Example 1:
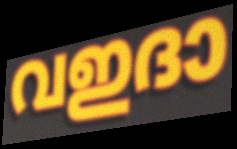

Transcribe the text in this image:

വഇദാ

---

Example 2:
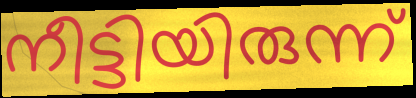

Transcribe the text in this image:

നീട്ടിയിരുന്ന്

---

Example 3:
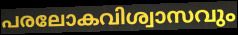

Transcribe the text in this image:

പരലോകവിശ്വാസവും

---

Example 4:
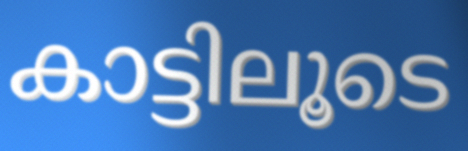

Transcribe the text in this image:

കാട്ടിലൂടെ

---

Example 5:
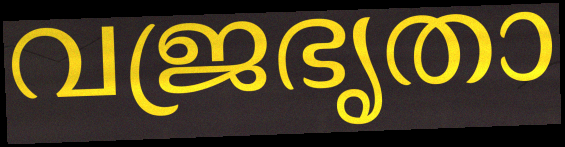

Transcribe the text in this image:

വജ്രഭൃതാ